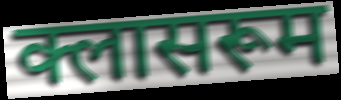
क्‍लासरूम